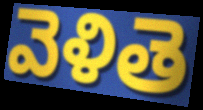
వెళితె